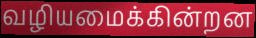
வழியமைக்கின்றன